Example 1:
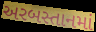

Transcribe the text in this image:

અરબસ્તાનમાં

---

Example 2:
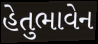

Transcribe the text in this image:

હેતુભાવેન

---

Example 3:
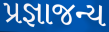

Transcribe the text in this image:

પ્રજ્ઞાજન્ય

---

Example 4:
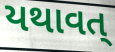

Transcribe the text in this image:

યથાવત્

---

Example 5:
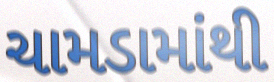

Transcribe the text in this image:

ચામડામાંથી